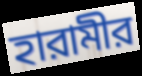
হারামীর